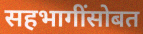
सहभागींसोबत